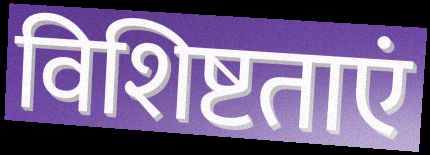
विशिष्टताएं